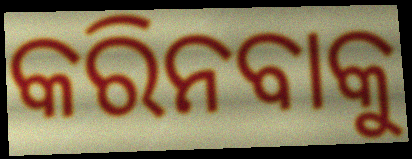
କରିନବାକୁ